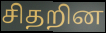
சிதறின